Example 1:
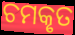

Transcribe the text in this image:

ଚମକୃତ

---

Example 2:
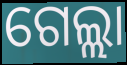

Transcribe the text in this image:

ଗେଲ୍ଲା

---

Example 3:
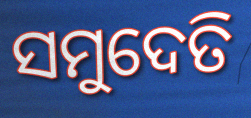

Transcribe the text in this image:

ସମୁଦେତି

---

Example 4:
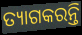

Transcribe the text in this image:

ତ୍ୟାଗକରନ୍ତି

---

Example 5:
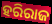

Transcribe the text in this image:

ହରିରାଜ